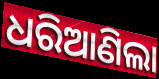
ଧରିଆଣିଲା